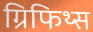
ग्रिफिथ्स